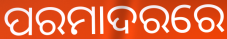
ପରମାଦରରେ